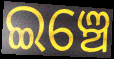
ଇଞ୍ଚେ